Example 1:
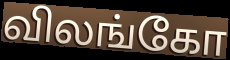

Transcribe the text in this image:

விலங்கோ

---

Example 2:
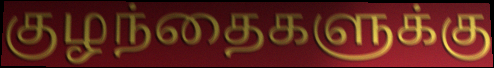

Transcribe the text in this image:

குழந்தைகளுக்கு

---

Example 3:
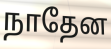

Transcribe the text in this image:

நாதேன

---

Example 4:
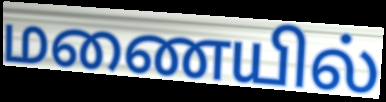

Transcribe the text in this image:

மணையில்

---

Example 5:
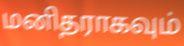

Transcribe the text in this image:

மனிதராகவும்